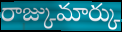
రాజ్కుమార్కు